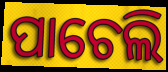
ପାଚେଲି